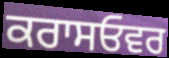
ਕਰਾਸਓਵਰ